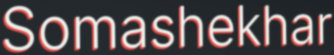
Somashekhar